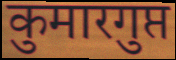
कुमारगुप्त